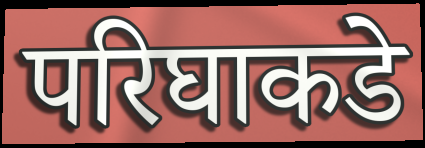
परिघाकडे